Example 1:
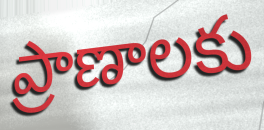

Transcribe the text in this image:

ప్రాణాలకు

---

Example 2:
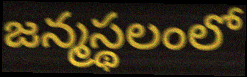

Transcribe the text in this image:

జన్మస్థలంలో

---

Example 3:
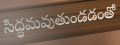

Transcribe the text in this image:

సిద్ధమవుతుండడంతో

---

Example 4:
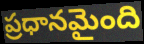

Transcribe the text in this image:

ప్రధానమైంది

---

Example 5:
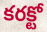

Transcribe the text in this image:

కరక్టో